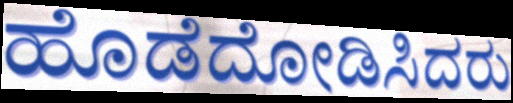
ಹೊಡೆದೋಡಿಸಿದರು